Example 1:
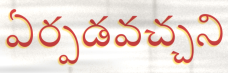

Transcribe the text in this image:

ఏర్పడవచ్చని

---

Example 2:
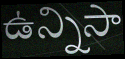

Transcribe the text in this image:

ఉన్నిసా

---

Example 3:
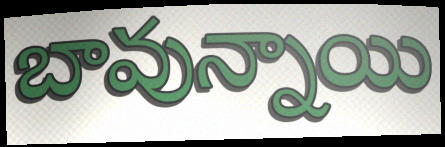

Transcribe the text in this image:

బావున్నాయి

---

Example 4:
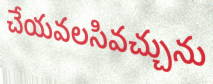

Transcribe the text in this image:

చేయవలసివచ్చును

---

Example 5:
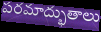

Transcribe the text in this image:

పరమాద్భుతాలు